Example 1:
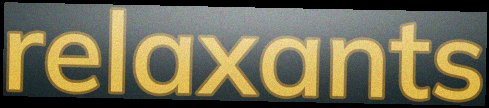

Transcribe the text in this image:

relaxants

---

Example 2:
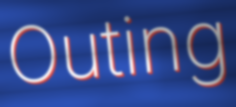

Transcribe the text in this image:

Outing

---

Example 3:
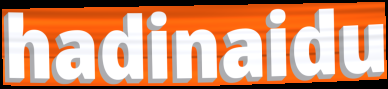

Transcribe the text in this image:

hadinaidu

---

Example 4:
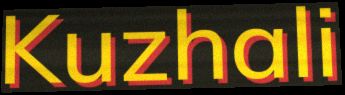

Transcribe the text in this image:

Kuzhali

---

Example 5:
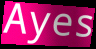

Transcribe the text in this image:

Ayes